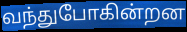
வந்துபோகின்றன